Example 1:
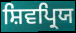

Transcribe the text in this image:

ਸ਼ਿਵਪ੍ਰਿਯ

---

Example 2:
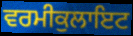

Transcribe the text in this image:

ਵਰਮੀਕੁਲਾਇਟ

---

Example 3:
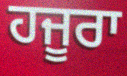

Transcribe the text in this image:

ਹਜੂਰਾ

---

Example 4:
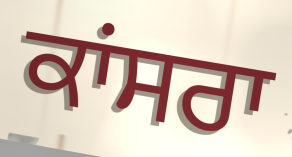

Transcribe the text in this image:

ਕਾਂਸਰਾ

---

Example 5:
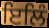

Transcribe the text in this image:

ਇਲਿੰ